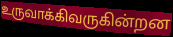
உருவாக்கிவருகின்றன